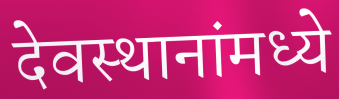
देवस्थानांमध्ये